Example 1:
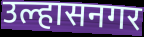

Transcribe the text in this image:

उल्हासनगर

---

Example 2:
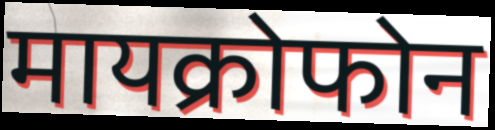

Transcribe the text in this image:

मायक्रोफोन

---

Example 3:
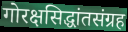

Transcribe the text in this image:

गोरक्षसिद्धांतसंग्रह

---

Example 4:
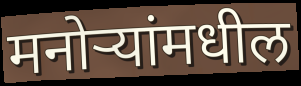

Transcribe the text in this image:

मनोऱ्यांमधील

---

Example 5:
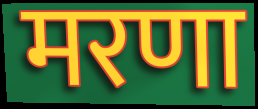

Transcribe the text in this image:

मरणा